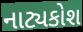
નાટ્યકોશ